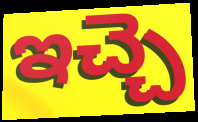
ఇచ్చె